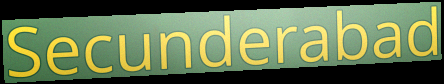
Secunderabad